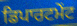
ਡਿਪਾਰਟਮੇਂਟ